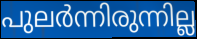
പുലർന്നിരുന്നില്ല